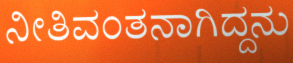
ನೀತಿವಂತನಾಗಿದ್ದನು